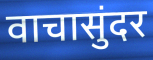
वाचासुंदर